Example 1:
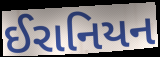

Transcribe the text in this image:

ઈરાનિયન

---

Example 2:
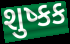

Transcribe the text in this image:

શુષ્કક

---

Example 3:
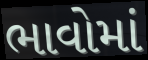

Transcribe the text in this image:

ભાવોમાં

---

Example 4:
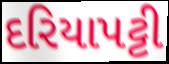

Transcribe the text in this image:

દરિયાપટ્ટી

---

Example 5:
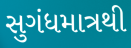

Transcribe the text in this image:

સુગંધમાત્રથી